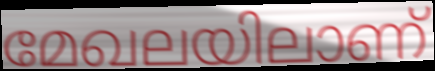
മേഖലയിലാണ്